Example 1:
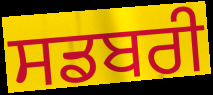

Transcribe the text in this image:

ਸਡਬਰੀ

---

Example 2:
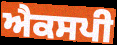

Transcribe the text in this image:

ਐਕਸਪੀ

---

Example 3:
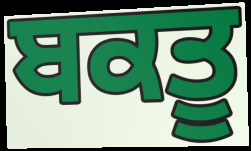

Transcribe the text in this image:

ਬਕਤੂ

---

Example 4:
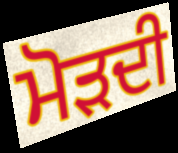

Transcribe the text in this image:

ਮੋੜਦੀ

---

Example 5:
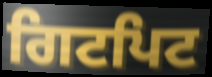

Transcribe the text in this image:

ਗਿਟਪਿਟ